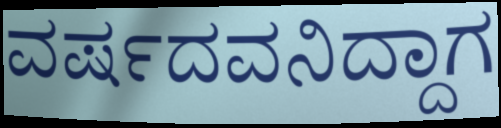
ವರ್ಷದವನಿದ್ದಾಗ